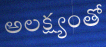
అలక్ష్యంతో